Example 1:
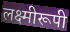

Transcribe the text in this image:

लक्ष्मीरूपी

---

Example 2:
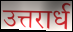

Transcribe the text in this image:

उत्तरार्ध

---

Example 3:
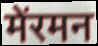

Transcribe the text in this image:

मेंरमन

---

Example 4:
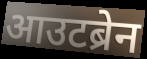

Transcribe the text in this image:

आउटब्रेन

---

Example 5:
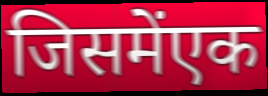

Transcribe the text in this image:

जिसमेंएक